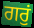
ਗਰੁਂ